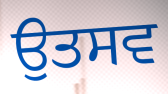
ਉਤਸਵ